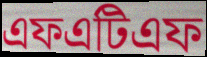
এফএটিএফ